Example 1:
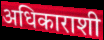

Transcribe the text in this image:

अधिकाराशी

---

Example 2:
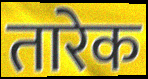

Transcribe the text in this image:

तारेक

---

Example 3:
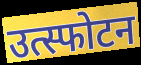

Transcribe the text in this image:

उत्स्फोटन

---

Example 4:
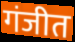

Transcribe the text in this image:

गंजीत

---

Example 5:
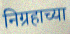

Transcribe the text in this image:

निग्रहाच्या